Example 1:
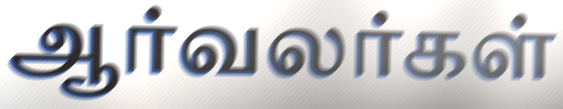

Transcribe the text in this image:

ஆர்வலர்கள்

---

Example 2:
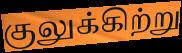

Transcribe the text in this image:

குலுக்கிற்று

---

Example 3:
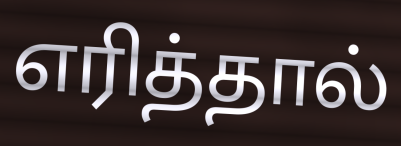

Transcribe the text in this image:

எரித்தால்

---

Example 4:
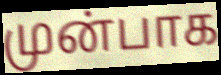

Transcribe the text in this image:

முன்பாக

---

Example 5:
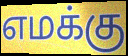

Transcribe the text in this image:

எமக்கு